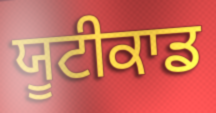
ਯੂਟੀਕਾਡ